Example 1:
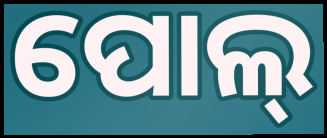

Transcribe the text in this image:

ପୋଲ୍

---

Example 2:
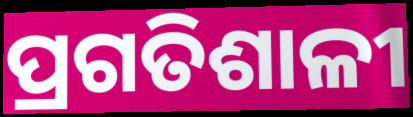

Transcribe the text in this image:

ପ୍ରଗତିଶାଳୀ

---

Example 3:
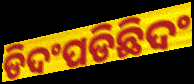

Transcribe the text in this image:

ଡିଦଂପଡିଛିଦଂ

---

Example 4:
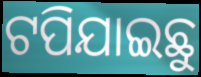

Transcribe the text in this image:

ଟପିଯାଇଛୁ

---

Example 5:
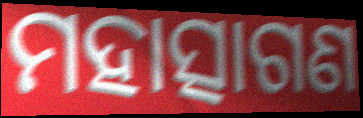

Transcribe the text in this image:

ମହାତ୍ସାଗଣ